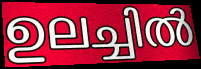
ഉലച്ചിൽ